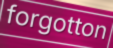
forgotton